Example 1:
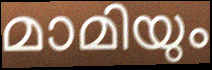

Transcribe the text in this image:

മാമിയും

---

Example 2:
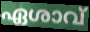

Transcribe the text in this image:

ഏശാവ്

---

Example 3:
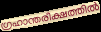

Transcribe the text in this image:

ഗ്രഹാന്തരീക്ഷത്തിൽ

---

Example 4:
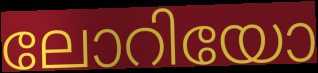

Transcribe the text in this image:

ലോറിയോ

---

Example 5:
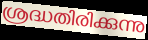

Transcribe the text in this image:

ശ്രദ്ധതിരിക്കുന്നു